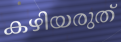
കഴിയരുത്